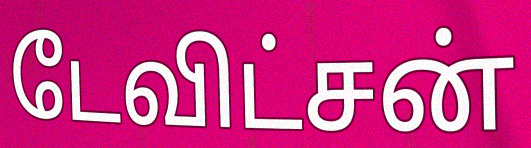
டேவிட்சன்